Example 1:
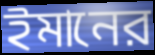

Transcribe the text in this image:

ইমানের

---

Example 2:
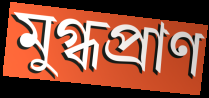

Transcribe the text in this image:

মুগ্ধপ্রাণ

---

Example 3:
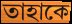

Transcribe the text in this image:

তাহাকে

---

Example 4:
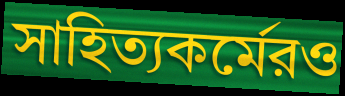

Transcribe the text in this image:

সাহিত্যকর্মেরও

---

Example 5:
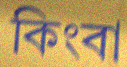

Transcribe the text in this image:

কিংবা